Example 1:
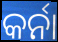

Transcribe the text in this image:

କର୍ନା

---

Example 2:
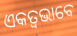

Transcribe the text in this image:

ଏକତ୍ଵଭାବେ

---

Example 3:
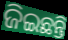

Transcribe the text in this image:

ଜିଇଛନ୍ତି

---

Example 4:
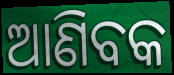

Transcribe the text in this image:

ଆଣିବକ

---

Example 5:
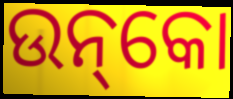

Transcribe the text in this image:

ଉନ୍‌କୋ